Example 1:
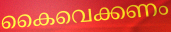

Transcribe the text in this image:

കൈവെക്കണം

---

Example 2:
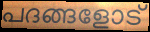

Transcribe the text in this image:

പദങ്ങളോട്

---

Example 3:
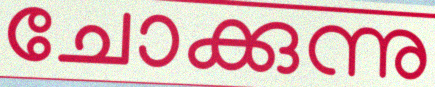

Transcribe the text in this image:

ചോക്കുന്നു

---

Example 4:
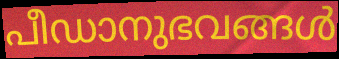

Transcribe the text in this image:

പീഡാനുഭവങ്ങൾ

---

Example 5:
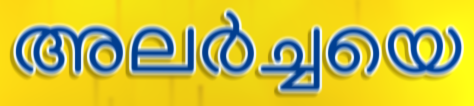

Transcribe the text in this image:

അലർച്ചയെ